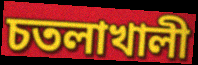
চতলাখালী